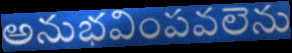
అనుభవింపవలెను